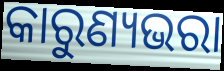
କାରୁଣ୍ୟଭରା